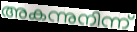
അകന്നുനിന്ന്